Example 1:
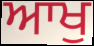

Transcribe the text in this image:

ਆਖੁ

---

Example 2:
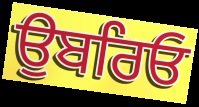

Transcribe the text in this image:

ਉਬਰਿਓ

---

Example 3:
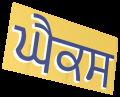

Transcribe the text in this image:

ਘੈਕਸ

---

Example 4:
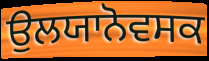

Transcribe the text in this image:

ਉਲਯਾਨੋਵਸਕ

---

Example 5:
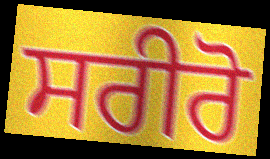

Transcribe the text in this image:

ਸਰੀਰੋ